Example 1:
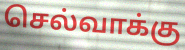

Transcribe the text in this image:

செல்வாக்கு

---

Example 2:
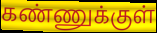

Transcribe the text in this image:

கண்ணுக்குள்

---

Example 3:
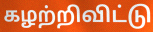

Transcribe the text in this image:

கழற்றிவிட்டு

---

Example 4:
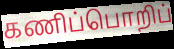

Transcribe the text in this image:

கணிப்பொறிப்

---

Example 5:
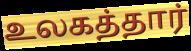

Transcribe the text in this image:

உலகத்தார்